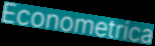
Econometrica